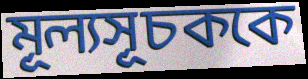
মূল্যসূচককে